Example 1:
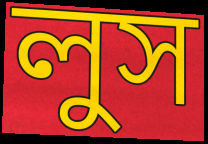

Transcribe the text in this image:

লুস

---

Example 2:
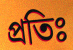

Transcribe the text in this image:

প্রতিঃ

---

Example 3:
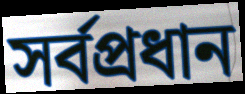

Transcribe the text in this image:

সর্বপ্রধান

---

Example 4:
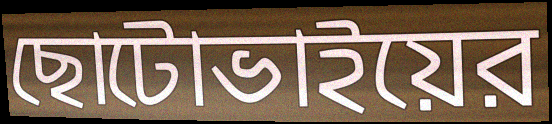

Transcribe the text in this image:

ছোটোভাইয়ের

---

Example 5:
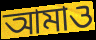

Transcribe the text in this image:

আমাও